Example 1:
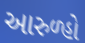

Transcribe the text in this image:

આરુળ્હો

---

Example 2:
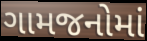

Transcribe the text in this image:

ગામજનોમાં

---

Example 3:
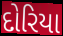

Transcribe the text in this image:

દોરિયા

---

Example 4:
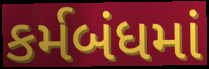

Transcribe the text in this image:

કર્મબંધમાં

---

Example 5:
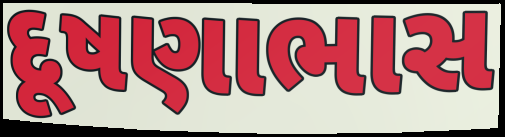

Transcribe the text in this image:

દૂષણાભાસ